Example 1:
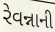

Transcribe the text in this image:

રેવન્નાની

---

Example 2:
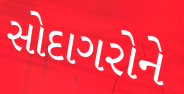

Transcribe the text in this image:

સોદાગરોને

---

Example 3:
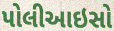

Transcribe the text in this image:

પોલીઆઇસો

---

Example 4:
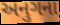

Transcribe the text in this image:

અનુગના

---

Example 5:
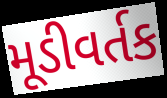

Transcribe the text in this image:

મૂડીવર્તક